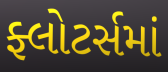
ફ્લોટર્સમાં